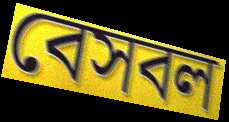
বেসবল